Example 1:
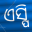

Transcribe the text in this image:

ଏସ୍ପି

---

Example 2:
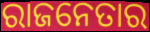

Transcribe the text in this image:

ରାଜନେତାର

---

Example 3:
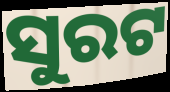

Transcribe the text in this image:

ସୁରଟ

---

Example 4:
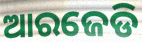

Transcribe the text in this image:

ଆରଜେଡି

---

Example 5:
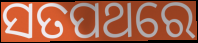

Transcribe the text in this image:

ସତପଥରେ